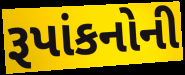
રૂપાંકનોની